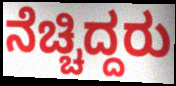
ನೆಚ್ಚಿದ್ದರು